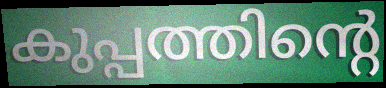
കുപ്പത്തിന്റെ